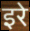
इरे